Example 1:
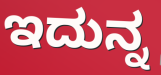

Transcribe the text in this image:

ಇದುನ್ನ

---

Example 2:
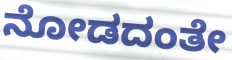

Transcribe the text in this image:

ನೋಡದಂತೇ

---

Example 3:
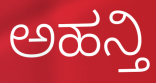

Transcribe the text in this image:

ಅಹನ್ತಿ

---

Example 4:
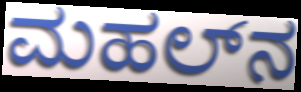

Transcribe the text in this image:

ಮಹಲ್‌ನ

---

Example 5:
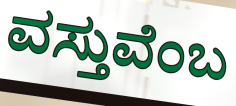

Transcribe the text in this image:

ವಸ್ತುವೆಂಬ